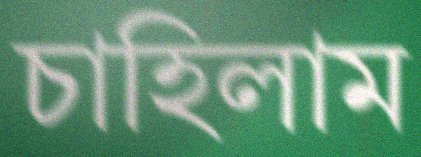
চাহিলাম